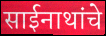
साईनाथांचे